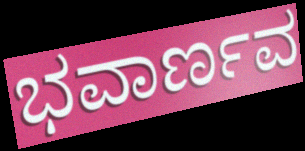
ಭವಾರ್ಣವ